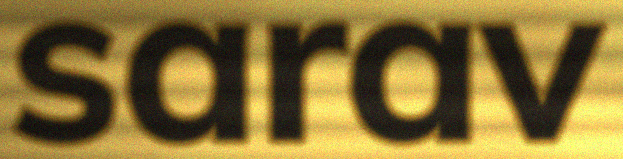
sarav